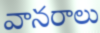
వానరాలు